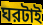
ঘরটাই